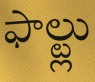
ఫాల్ట్లు